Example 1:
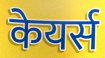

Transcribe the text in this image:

केयर्स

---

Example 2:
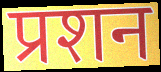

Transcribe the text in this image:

प्रशन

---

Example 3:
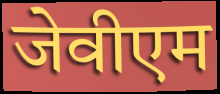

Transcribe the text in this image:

जेवीएम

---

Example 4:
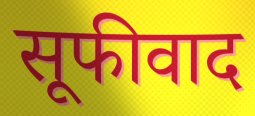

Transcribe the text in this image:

सूफीवाद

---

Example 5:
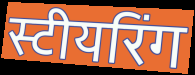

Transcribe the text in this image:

स्टीयरिंग